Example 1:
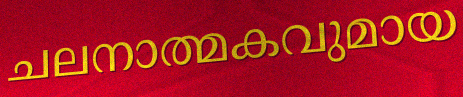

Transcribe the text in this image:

ചലനാത്മകവുമായ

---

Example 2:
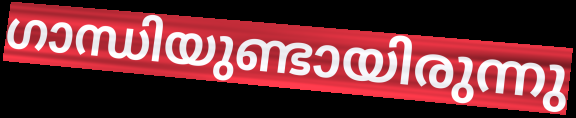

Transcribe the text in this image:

ഗാന്ധിയുണ്ടായിരുന്നു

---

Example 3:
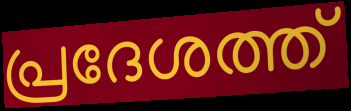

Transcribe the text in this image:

പ്രദേശത്ത്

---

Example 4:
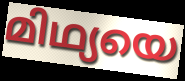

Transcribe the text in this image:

മിഥ്യയെ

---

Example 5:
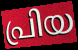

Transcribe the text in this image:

പ്രിയ